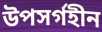
উপসর্গহীন